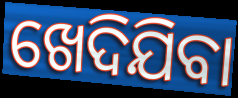
ଖେଦିଯିବା